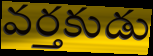
వర్తకుడు